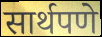
सार्थपणे